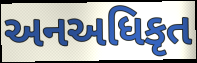
અનઅધિકૃત